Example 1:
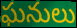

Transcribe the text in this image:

ఘనులు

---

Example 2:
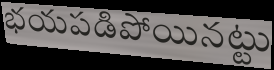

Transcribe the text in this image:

భయపడిపోయినట్టు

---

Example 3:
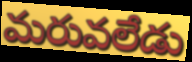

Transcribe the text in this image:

మరువలేడు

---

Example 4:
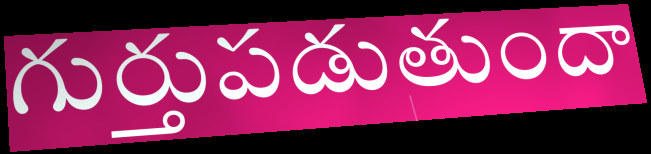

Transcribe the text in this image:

గుర్తుపడుతుందా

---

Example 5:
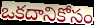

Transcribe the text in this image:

ఒకదానికోసం